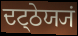
ਦਟ੍ਠੇਯ੍ਯਂ